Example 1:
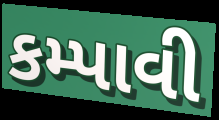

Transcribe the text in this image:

કમ્પાવી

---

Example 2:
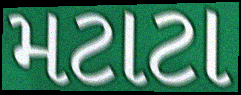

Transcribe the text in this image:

મટાટા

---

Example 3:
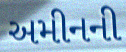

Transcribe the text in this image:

અમીનની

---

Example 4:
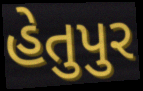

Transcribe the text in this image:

હેતુપુર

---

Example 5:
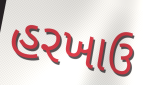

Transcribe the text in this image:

હરખાઉ